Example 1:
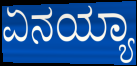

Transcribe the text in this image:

ಏನಯ್ಯಾ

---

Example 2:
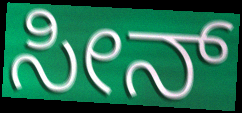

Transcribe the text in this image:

ಸೀನ್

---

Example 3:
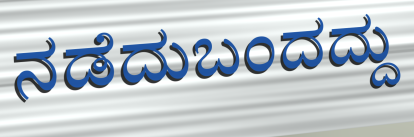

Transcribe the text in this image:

ನಡೆದುಬಂದದ್ದು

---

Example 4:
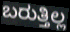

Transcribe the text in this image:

ಬರುತ್ತಿಲ್ಲ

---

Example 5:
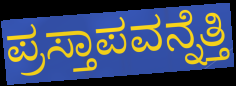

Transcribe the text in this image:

ಪ್ರಸ್ತಾಪವನ್ನೆತ್ತಿ